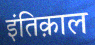
इंतिक़ाल